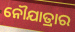
ନୌଯାତ୍ରାର